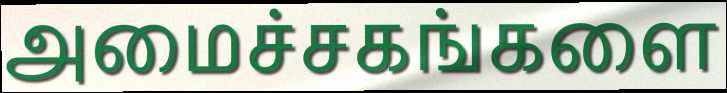
அமைச்சகங்களை